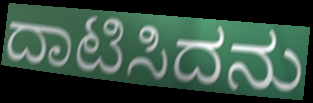
ದಾಟಿಸಿದನು